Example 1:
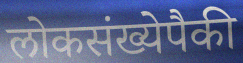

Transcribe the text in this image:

लोकसंख्येपैकी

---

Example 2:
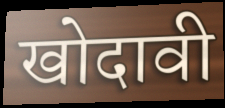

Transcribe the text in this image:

खोदावी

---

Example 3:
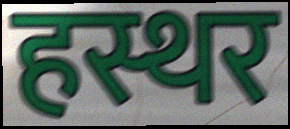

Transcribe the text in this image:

हस्थर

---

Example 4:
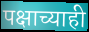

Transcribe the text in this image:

पक्षाच्याही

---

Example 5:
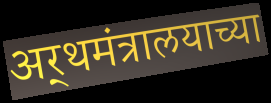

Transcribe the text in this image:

अर्थमंत्रालयाच्या